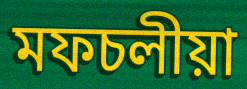
মফচলীয়া